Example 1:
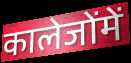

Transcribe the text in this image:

कालेजोंमें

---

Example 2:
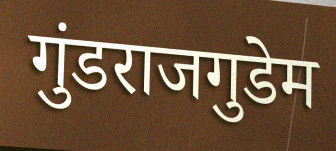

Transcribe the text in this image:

गुंडराजगुडेम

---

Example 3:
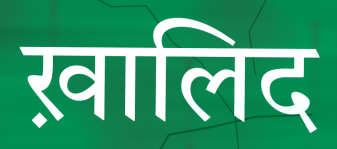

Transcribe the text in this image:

ख़ालिद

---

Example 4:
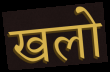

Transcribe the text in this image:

खलो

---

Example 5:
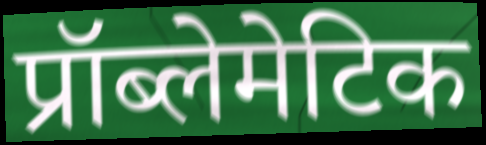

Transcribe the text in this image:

प्रॉब्लेमेटिक